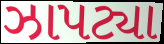
ઝાપટ્યા